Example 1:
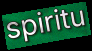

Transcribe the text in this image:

spiritu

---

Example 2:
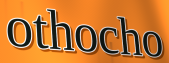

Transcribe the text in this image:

othocho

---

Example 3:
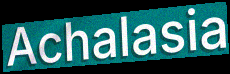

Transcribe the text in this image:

Achalasia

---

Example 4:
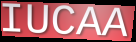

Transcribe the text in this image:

IUCAA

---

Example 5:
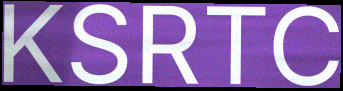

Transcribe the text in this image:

KSRTC